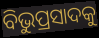
ବିଭୁପ୍ରସାଦକୁ